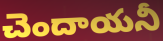
చెందాయనీ